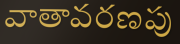
వాతావరణపు